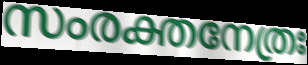
സംരക്തനേത്രഃ